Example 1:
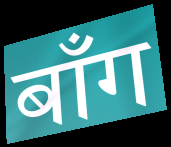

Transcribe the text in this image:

बाँग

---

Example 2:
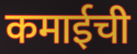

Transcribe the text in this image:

कमाईची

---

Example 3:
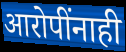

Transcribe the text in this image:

आरोपींनाही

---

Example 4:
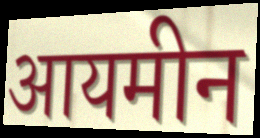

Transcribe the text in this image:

आयमीन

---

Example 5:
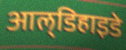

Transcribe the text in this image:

आल्डिहाइडे